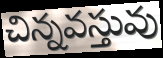
చిన్నవస్తువు